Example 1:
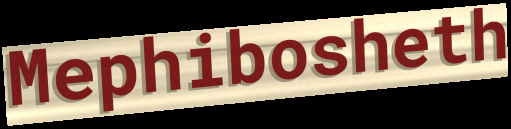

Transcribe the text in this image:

Mephibosheth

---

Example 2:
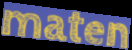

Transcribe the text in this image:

maten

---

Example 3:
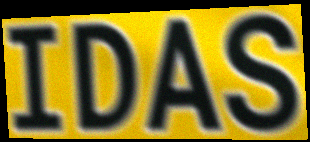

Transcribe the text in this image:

IDAS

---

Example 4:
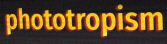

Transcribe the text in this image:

phototropism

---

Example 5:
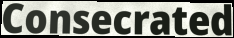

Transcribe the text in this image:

Consecrated